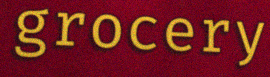
grocery